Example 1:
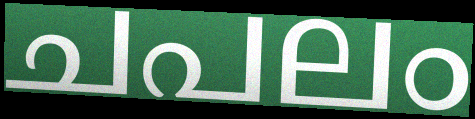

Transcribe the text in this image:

ചപലം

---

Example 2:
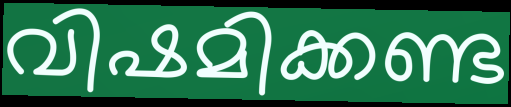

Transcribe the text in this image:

വിഷമിക്കണ്ട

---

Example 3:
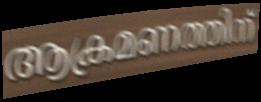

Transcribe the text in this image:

ആക്രമണത്തിന്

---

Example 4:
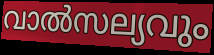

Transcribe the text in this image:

വാൽസല്യവും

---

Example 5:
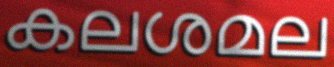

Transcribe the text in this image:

കലശമല